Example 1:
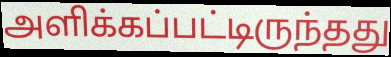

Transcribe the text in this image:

அளிக்கப்பட்டிருந்தது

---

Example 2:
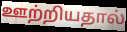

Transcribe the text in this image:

ஊற்றியதால்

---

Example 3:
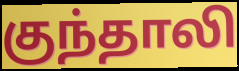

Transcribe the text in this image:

குந்தாலி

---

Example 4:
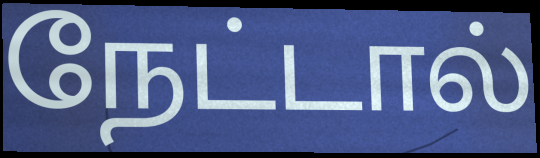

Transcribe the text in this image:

நேட்டால்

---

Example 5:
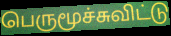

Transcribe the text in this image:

பெருமூச்சுவிட்டு